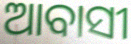
ଆବାସୀ